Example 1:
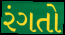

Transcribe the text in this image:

રંગતો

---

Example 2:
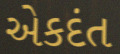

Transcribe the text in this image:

એકદંત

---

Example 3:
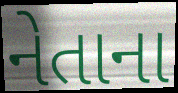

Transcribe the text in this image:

નેતાના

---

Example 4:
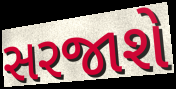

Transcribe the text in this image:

સરજાશે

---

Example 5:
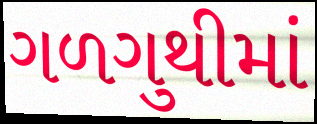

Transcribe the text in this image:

ગળગુથીમાં